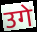
उगे